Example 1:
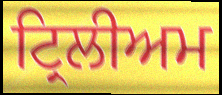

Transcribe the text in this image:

ਟ੍ਰਿਲੀਅਮ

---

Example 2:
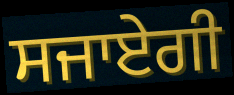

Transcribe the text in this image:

ਸਜਾਏਗੀ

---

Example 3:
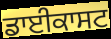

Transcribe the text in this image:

ਡਾਈਕਾਸਟ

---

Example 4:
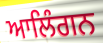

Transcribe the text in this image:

ਆਲਿੰਗਨ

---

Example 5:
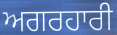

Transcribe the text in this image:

ਅਗਰਹਾਰੀ